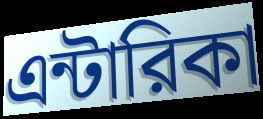
এন্টারিকা